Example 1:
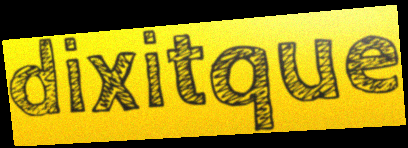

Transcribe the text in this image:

dixitque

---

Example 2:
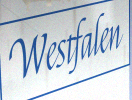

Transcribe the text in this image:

Westfalen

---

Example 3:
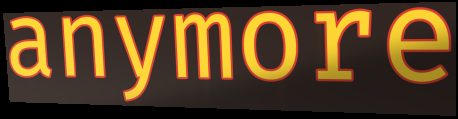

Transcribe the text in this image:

anymore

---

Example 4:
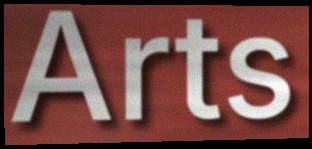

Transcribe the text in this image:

Arts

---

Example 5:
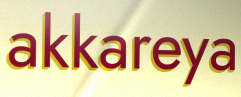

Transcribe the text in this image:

akkareya